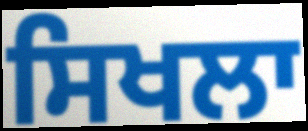
ਸਿਖਲਾ